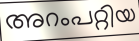
അറംപറ്റിയ